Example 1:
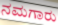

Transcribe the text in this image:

ನಮಗಾರು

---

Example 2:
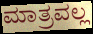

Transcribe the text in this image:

ಮಾತ್ರವಲ್ಲ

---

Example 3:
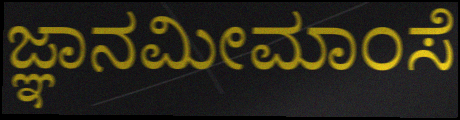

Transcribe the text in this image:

ಜ್ಞಾನಮೀಮಾಂಸೆ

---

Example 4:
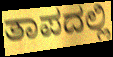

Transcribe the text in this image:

ತಾಪದಲ್ಲಿ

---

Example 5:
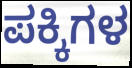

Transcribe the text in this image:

ಪಕ್ಕಿಗಳ